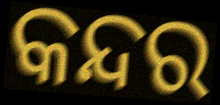
କନ୍ଦର